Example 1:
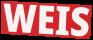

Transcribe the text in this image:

WEIS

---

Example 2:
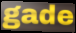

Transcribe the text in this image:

gade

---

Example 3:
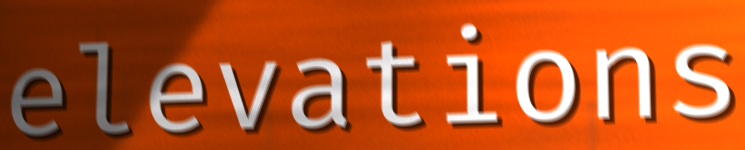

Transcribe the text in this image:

elevations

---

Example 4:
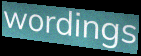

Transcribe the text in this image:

wordings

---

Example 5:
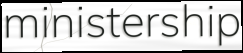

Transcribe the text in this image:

ministership